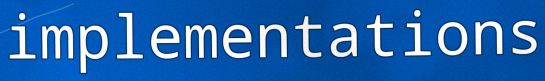
implementations